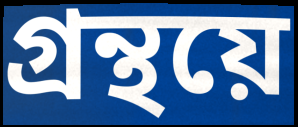
গ্ৰন্থয়ে